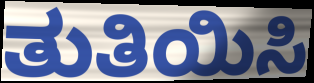
ತುತಿಯಿಸಿ